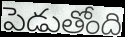
పెడుతోంది